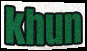
khun